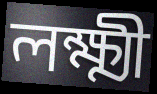
লক্ষ্মী